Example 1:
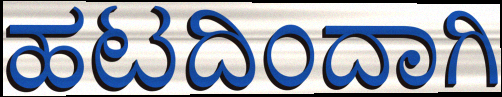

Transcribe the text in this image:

ಹಟದಿಂದಾಗಿ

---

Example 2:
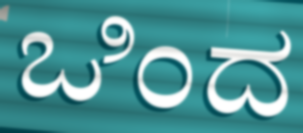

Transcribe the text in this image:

ಒಿಂದ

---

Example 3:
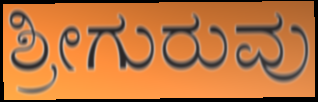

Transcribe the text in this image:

ಶ್ರೀಗುರುವು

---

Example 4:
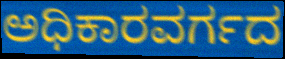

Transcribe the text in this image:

ಅಧಿಕಾರವರ್ಗದ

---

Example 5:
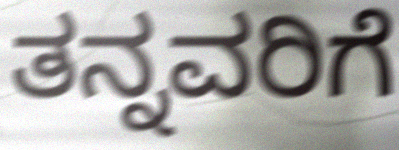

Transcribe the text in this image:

ತನ್ನವರಿಗೆ